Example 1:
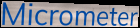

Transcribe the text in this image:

Micrometer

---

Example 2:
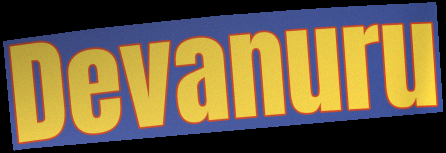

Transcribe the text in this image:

Devanuru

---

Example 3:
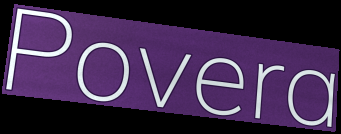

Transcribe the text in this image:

Povera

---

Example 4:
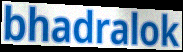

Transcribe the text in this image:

bhadralok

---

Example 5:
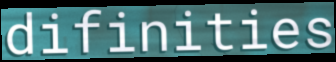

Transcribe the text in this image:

difinities